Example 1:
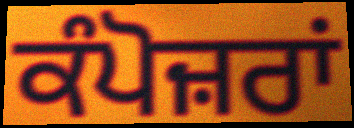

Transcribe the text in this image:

ਕੰਪੋਜ਼ਰਾਂ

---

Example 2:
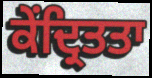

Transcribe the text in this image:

ਕੇਂਦ੍ਰਿਤਤਾ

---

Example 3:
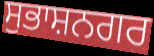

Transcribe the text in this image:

ਸੁਭਾਸ਼ਨਗਰ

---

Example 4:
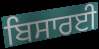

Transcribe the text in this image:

ਬਿਸਾਰਈ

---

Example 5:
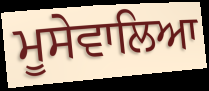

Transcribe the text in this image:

ਮੂਸੇਵਾਲਿਆ